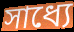
সাধ্যে